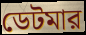
ডেটমার